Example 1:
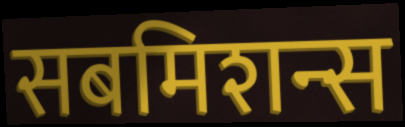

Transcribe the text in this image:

सबमिशन्स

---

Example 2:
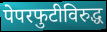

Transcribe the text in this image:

पेपरफुटीविरुद्ध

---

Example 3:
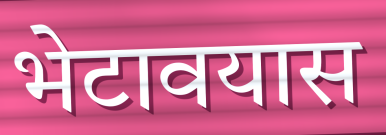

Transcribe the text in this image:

भेटावयास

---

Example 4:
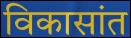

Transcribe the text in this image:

विकासांत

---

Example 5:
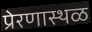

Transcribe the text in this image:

प्रेरणास्थळ